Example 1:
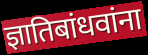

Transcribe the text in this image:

ज्ञातिबांधवांना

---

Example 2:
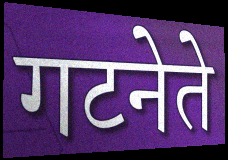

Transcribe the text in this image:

गटनेते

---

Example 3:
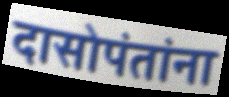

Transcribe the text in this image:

दासोपंतांना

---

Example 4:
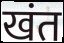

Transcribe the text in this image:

खंत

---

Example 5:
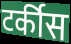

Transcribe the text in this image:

टर्कीस